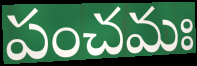
పంచమః